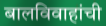
बालविवाहांची